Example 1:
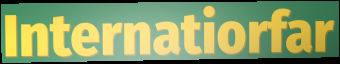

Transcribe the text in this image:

Internatiorfar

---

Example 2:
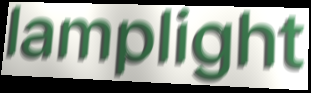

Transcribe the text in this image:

lamplight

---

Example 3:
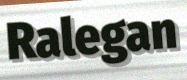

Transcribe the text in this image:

Ralegan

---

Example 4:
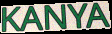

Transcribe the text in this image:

KANYA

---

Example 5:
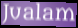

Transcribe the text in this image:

Jualam